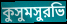
কুসুমসুরভি